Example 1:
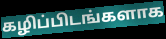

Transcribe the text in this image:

கழிப்பிடங்களாக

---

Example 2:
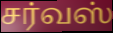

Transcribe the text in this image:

சர்வஸ்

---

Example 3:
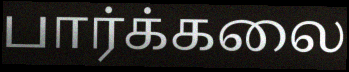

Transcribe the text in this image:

பார்க்கலை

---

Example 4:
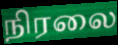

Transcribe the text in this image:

நிரலை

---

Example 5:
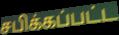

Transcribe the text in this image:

சபிக்கப்பட்ட